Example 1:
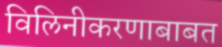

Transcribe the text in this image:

विलिनीकरणाबाबत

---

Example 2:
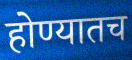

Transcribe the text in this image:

होण्यातच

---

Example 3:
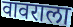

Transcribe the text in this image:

वावराला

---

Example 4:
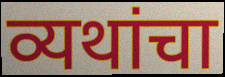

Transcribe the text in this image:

व्यथांचा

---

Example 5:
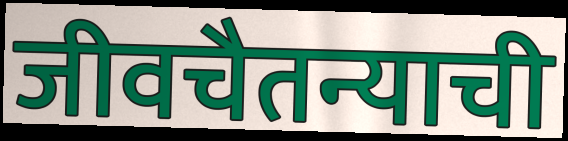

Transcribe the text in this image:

जीवचैतन्याची